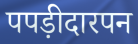
पपड़ीदारपन